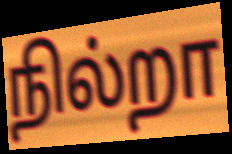
நில்றா